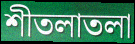
শীতলাতলা